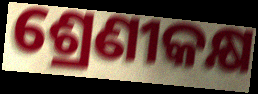
ଶ୍ରେଣୀକକ୍ଷ